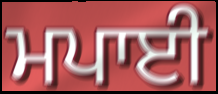
ਮਪਾਈ